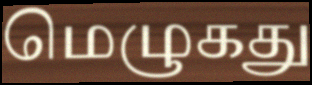
மெழுகது